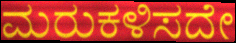
ಮರುಕಳಿಸದೇ